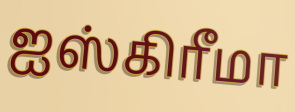
ஐஸ்கிரீமா